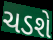
ચડશે